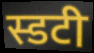
स्डटी